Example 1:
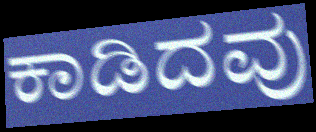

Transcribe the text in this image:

ಕಾಡಿದವು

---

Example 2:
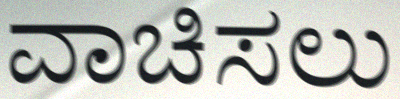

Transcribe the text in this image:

ವಾಚಿಸಲು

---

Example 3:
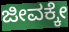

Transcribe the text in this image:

ಜೀವಕ್ಕೇ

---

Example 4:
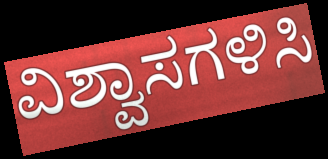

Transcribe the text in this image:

ವಿಶ್ವಾಸಗಳಿಸಿ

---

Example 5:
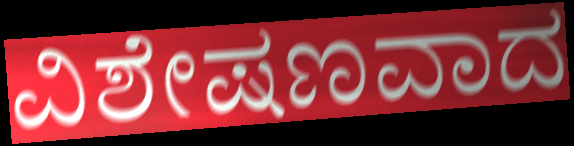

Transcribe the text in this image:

ವಿಶೇಷಣವಾದ